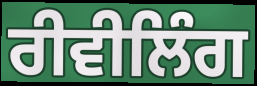
ਰੀਵੀਲਿੰਗ